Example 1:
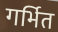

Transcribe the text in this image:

गर्भित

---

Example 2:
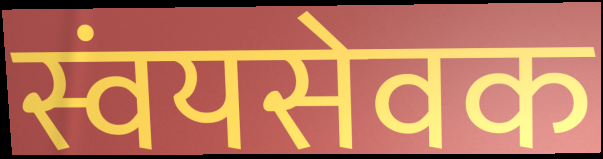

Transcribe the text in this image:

स्वंयसेवक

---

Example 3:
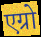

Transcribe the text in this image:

एग्रो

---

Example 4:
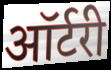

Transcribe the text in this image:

ऑर्टरी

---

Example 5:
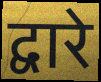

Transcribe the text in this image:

द्वारे